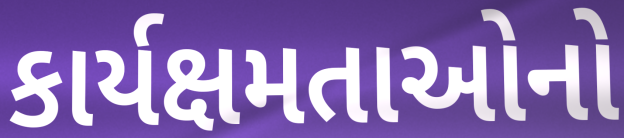
કાર્યક્ષમતાઓનો